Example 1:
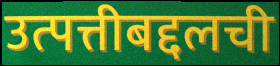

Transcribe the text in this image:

उत्पत्तीबद्दलची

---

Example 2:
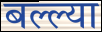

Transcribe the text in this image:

बल्ल्या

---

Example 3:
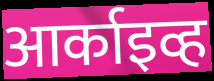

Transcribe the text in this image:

आर्काइव्ह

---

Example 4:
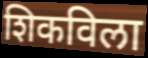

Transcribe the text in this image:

शिकविला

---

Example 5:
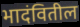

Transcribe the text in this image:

भादंवितील